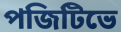
পজিটিভে